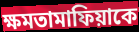
ক্ষমতামাফিয়াকে